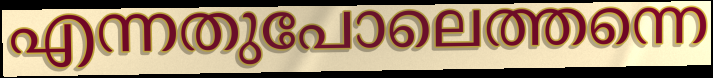
എന്നതുപോലെത്തന്നെ